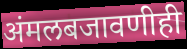
अंमलबजावणीही